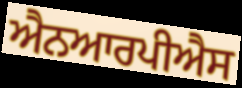
ਐਨਆਰਪੀਐਸ